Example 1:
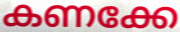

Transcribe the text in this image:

കണക്കേ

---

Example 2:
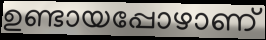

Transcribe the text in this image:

ഉണ്ടായപ്പോഴാണ്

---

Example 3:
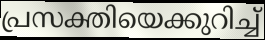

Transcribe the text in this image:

പ്രസക്തിയെക്കുറിച്ച്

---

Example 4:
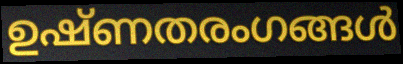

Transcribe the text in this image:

ഉഷ്ണതരംഗങ്ങൾ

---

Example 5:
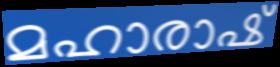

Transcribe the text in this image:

മഹാരാഷ്